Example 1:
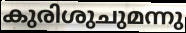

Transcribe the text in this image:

കുരിശുചുമന്നു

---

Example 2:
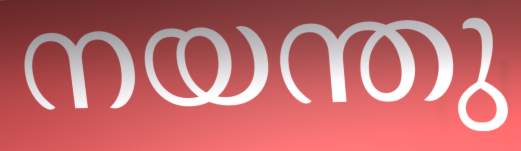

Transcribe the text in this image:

നയന്തു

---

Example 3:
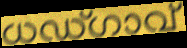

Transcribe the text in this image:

ധഡ്ഗാവ്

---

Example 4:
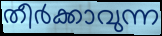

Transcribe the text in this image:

തീർക്കാവുന്ന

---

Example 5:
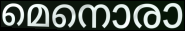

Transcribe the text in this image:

മെനൊരാ